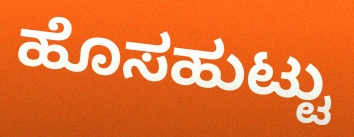
ಹೊಸಹುಟ್ಟು